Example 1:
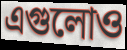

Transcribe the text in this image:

এগুলোও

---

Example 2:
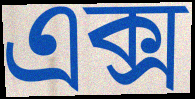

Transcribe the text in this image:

এক্স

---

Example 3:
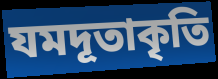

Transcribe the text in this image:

যমদূতাকৃতি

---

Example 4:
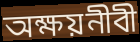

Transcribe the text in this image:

অক্ষয়নীবী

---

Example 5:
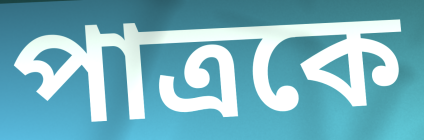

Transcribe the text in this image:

পাত্রকে